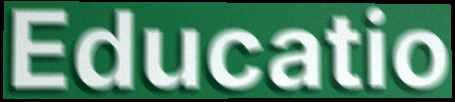
Educatio